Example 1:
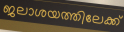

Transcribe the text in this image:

ജലാശയത്തിലേക്ക്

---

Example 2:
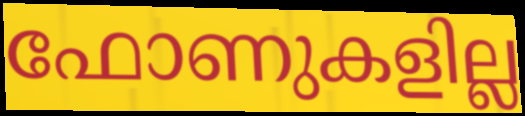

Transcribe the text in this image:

ഫോണുകളില്ല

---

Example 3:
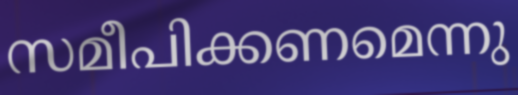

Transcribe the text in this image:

സമീപിക്കണമെന്നു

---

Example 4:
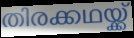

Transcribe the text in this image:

തിരക്കഥയ്ക്ക്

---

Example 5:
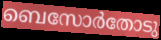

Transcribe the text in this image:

ബെസോർതോടു